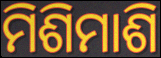
ମିଶିମାଶି